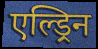
एल्ड्रिन